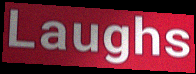
Laughs